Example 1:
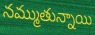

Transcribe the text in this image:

నమ్ముతున్నాయి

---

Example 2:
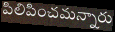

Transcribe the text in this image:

పిలిపించమన్నారు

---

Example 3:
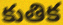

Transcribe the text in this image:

కుతిక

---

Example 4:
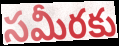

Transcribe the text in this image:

సమీరకు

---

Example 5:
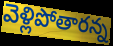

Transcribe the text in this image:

వెళ్లిపోతారన్న